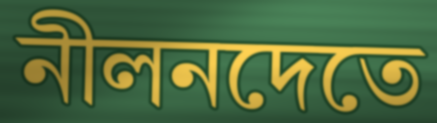
নীলনদেতে